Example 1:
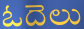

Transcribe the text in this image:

ఓదెలు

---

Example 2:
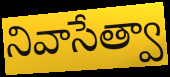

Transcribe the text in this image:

నివాసేత్వా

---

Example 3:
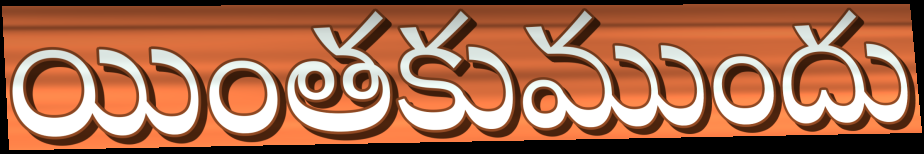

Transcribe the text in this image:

యింతకుముందు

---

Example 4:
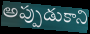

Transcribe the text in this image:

అప్పుడుకాని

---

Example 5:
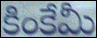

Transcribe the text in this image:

కింకేమీ